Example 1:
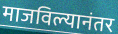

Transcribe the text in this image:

माजविल्यानंतर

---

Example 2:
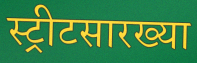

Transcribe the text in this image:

स्ट्रीटसारख्या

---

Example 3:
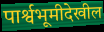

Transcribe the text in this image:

पार्श्वभूमीदेखील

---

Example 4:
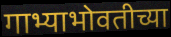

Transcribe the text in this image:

गाभ्याभोवतीच्या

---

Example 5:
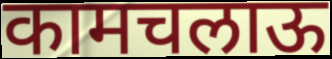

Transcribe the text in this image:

कामचलाऊ